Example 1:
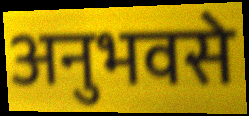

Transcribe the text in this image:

अनुभवसे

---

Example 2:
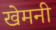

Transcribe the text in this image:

खेमनी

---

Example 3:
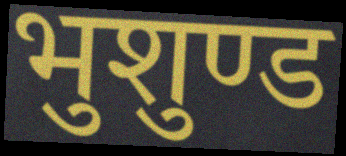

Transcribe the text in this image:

भुशुण्ड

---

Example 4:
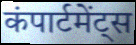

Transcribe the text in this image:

कंपार्टमेंट्स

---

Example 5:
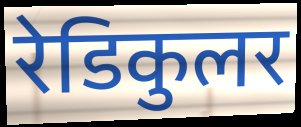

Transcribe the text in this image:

रेडिकुलर